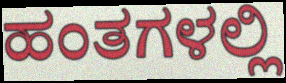
ಹಂತಗಳಲ್ಲಿ